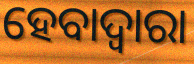
ହେବାଦ୍ୱାରା